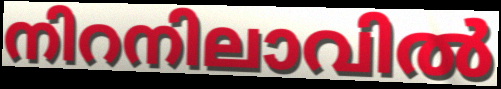
നിറനിലാവിൽ